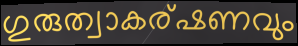
ഗുരുത്വാകര്ഷണവും